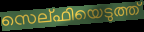
സെല്ഫിയെടുത്ത്